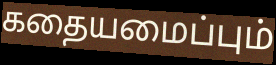
கதையமைப்பும்